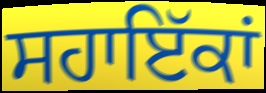
ਸਹਾਇੱਕਾਂ